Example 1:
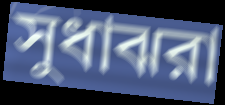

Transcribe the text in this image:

সুধাঝরা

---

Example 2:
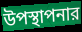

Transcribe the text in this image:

উপস্থাপনার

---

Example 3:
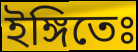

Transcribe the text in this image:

ইঙ্গিতেঃ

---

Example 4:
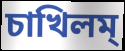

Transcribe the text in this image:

চাখিলম্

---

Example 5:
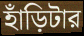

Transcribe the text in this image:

হাঁড়িটার